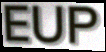
EUP